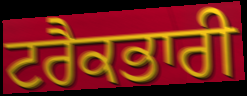
ਟਰੈਕਭਾਰੀ